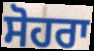
ਸੋਹਰਾ